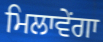
ਮਿਲਾਵੇਂਗਾ